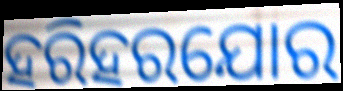
ହରିହରଯୋର